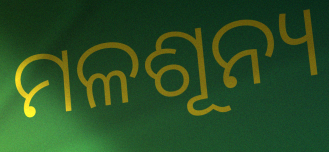
ମଳଶୂନ୍ୟ